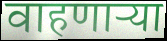
वाहणाऱ्या